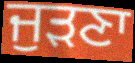
ਜੁੜਣਾ